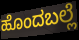
ಹೊಂದಬಲ್ಲೆ